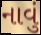
નાવું